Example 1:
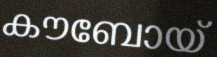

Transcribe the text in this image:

കൗബോയ്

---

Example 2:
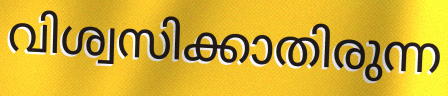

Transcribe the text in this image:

വിശ്വസിക്കാതിരുന്ന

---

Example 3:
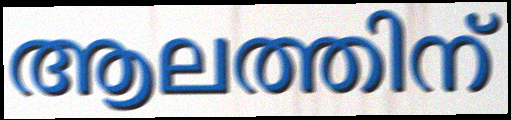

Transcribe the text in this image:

ആലത്തിന്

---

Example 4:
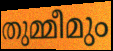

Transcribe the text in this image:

തുമ്മീമും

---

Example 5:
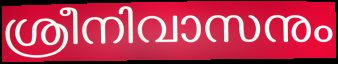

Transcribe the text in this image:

ശ്രീനിവാസനും